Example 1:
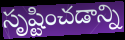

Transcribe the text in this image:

సృష్టించడాన్ని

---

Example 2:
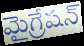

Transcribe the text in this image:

మైగ్రేషన్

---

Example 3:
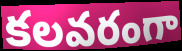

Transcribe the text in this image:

కలవరంగా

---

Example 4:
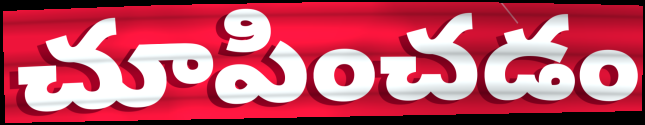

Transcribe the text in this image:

చూపించడం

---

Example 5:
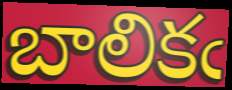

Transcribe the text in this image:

బాలికఁ